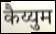
कैय्युम